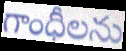
గాంధీలను